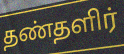
தண்தளிர்